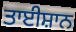
ਤਾਈਸ਼ਾਨ